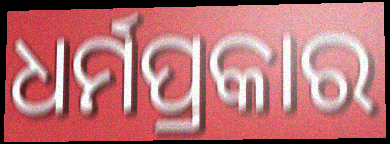
ଧର୍ମପ୍ରକାର